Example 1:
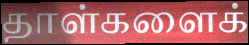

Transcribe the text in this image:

தாள்களைக்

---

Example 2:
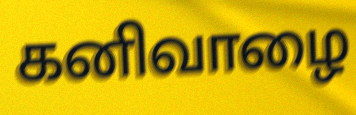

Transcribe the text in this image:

கனிவாழை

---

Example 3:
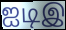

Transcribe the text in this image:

ஐடிஇ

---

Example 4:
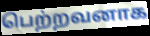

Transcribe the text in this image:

பெற்றவனாக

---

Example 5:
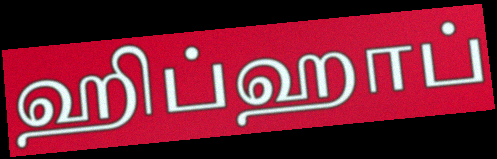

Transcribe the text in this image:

ஹிப்ஹாப்